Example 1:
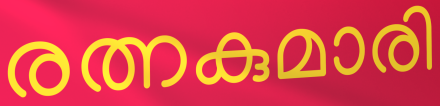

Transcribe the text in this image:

രത്നകുമാരി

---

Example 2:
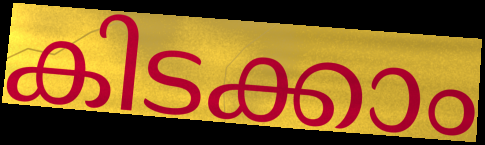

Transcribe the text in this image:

കിടക്കാം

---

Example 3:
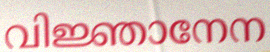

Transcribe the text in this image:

വിജ്ഞാനേന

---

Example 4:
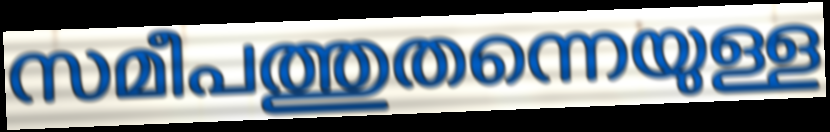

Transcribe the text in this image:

സമീപത്തുതന്നെയുള്ള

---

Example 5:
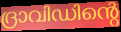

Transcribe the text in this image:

ദ്രാവിഡിന്റെ